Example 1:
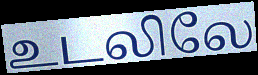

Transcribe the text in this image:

உடலிலே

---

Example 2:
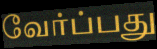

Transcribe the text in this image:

வேர்ப்பது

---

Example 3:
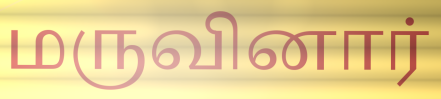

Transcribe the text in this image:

மருவினார்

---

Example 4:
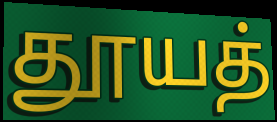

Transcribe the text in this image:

தூயத்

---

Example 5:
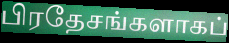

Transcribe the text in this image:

பிரதேசங்களாகப்